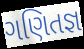
ગણિતજ્ઞ